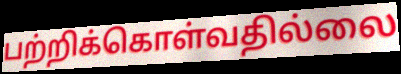
பற்றிக்கொள்வதில்லை